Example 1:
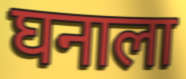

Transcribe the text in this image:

घनाला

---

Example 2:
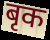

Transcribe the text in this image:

बृक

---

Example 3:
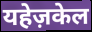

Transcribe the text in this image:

यहेज़केल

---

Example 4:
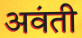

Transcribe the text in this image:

अवंती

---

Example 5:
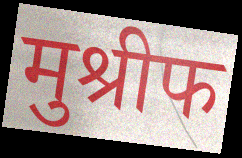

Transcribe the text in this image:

मुश्रीफ